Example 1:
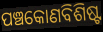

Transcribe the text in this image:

ପଞ୍ଚକୋଣବିଶିଷ୍ଟ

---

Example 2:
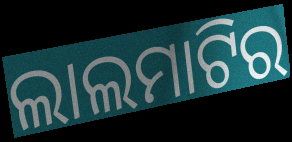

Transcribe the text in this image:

ଲାଲମାଟିର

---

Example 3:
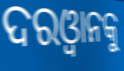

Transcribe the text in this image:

ଦରଓ୍ୱାନକୁ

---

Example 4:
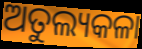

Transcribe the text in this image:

ଅତୁଲ୍ୟକଳା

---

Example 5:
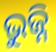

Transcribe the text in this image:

ଭୁଜ୍ନି